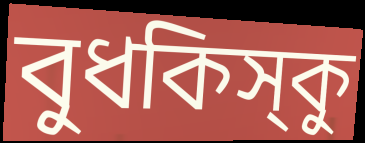
বুধকিস্‌কু